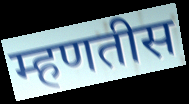
म्हणतीस